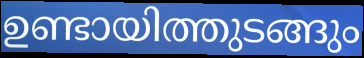
ഉണ്ടായിത്തുടങ്ങും